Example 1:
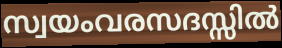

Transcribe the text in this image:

സ്വയംവരസദസ്സിൽ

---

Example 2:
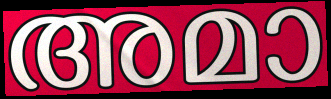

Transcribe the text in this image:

അമാ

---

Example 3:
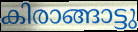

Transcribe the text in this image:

കിരാങ്ങാട്ടു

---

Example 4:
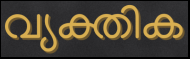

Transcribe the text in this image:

വ്യക്തിക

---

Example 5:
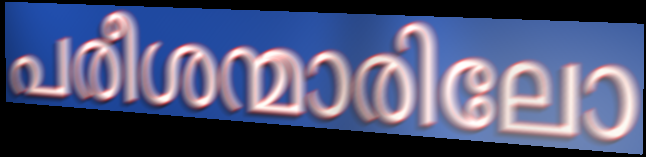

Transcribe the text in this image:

പരീശന്മാരിലോ